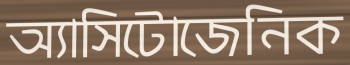
অ্যাসিটোজেনিক